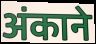
अंकाने